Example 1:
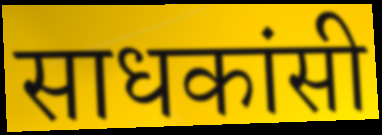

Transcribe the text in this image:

साधकांसी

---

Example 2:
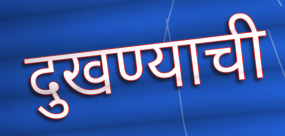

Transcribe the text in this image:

दुखण्याची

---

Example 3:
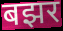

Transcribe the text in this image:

बझर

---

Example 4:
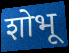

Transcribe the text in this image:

शोभू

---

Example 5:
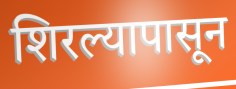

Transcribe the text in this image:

शिरल्यापासून